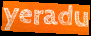
yeradu